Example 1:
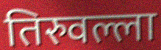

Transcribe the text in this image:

तिरुवल्ला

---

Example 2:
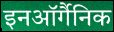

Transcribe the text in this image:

इनऑर्गैनिक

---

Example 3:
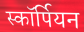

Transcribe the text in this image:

स्कॉर्पियन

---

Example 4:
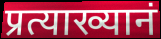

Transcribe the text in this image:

प्रत्याख्यानं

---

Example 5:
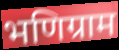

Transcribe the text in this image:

भणिग्राम